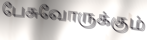
பேசுவோருக்கும்